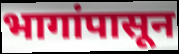
भागांपासून